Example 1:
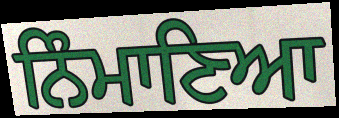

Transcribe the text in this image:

ਨਿੰਮਾਣਿਆ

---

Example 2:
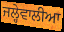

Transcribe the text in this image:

ਜਲ੍ਹੇਵਾਲੀਆ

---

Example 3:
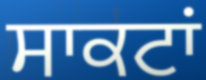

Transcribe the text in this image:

ਸਾਕਟਾਂ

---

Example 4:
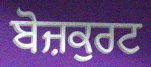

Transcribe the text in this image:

ਬੋਜ਼ਕੁਰਟ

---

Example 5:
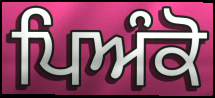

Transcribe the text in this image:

ਪਿਅੰਕੋ